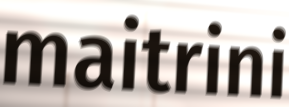
maitrini